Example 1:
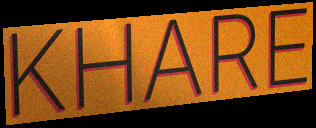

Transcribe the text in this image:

KHARE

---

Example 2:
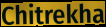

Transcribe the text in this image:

Chitrekha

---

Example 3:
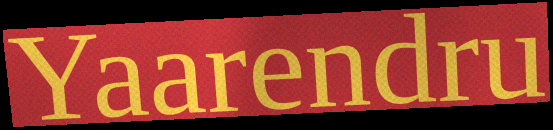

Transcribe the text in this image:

Yaarendru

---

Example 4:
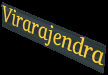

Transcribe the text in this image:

Virarajendra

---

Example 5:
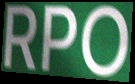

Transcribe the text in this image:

RPO